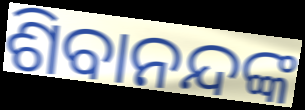
ଶିବାନନ୍ଦଙ୍କ